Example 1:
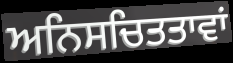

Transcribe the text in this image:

ਅਨਿਸਚਿਤਤਾਵਾਂ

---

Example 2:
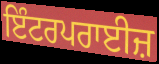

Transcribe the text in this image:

ਇੰਟਰਪਰਾਈਜ਼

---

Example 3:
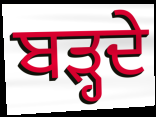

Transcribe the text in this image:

ਬੜ੍ਹਦੇ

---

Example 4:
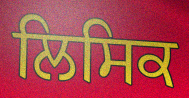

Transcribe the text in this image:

ਲਿਸਿਕ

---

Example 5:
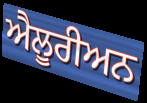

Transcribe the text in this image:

ਐਲੂਰੀਅਨ